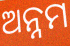
ଅନ୍ନମ